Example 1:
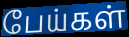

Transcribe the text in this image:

பேய்கள்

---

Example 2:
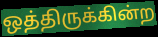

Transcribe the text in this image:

ஒத்திருக்கின்ற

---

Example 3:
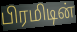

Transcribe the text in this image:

பிரமிடின்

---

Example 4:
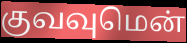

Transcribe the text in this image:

குவவுமென்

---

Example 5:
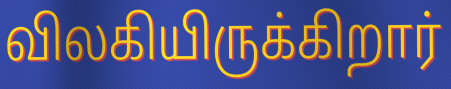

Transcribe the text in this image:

விலகியிருக்கிறார்